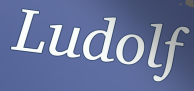
Ludolf